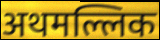
अथमल्लिक